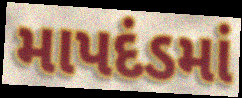
માપદંડમાં